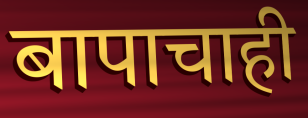
बापाचाही